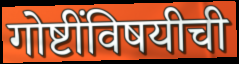
गोष्टींविषयीची